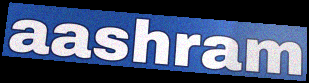
aashram